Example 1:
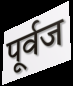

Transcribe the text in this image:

पूर्वज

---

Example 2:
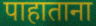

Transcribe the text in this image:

पाहाताना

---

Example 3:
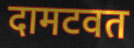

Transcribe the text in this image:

दामटवत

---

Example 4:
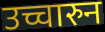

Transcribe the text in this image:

उच्चारुन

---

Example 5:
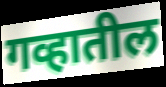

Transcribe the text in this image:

गव्हातील